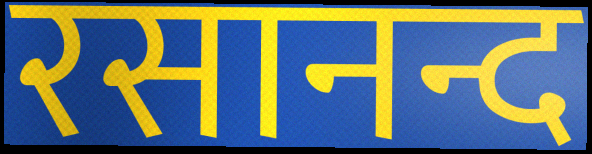
रसानन्द